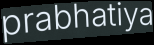
prabhatiya